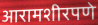
आरामशीरपणे